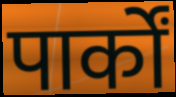
पार्कों